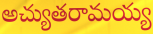
అచ్యుతరామయ్య